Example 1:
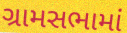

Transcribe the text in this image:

ગ્રામસભામાં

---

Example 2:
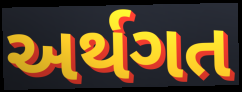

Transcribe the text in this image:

અર્થગત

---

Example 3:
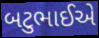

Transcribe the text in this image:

બટુભાઈએ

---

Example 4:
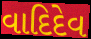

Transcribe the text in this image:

વાદિદેવ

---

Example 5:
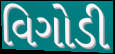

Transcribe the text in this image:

વિગોડી